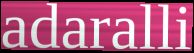
adaralli